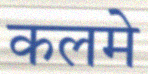
कलमे